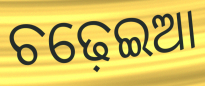
ଚଢ଼େଇଆ